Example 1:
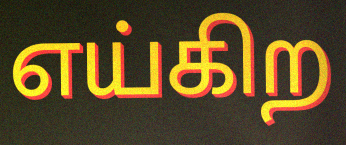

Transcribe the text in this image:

எய்கிற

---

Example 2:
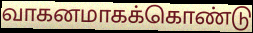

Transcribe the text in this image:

வாகனமாகக்கொண்டு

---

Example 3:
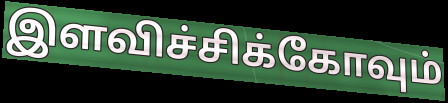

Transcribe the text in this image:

இளவிச்சிக்கோவும்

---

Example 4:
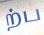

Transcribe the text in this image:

ற்ப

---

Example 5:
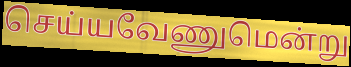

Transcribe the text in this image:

செய்யவேணுமென்று